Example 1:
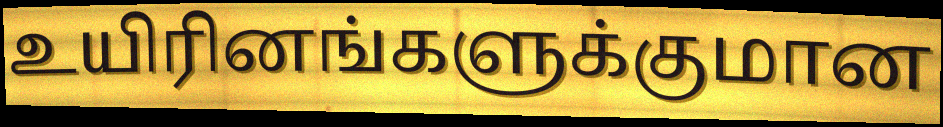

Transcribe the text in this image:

உயிரினங்களுக்குமான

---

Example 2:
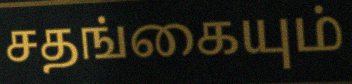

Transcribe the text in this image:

சதங்கையும்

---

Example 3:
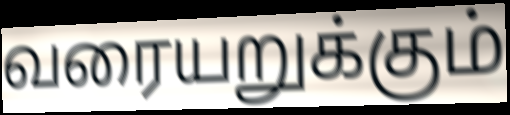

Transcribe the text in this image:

வரையறுக்கும்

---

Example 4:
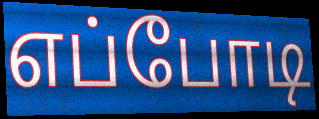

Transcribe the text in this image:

எப்போடி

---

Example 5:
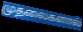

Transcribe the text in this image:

முதலைகளால்